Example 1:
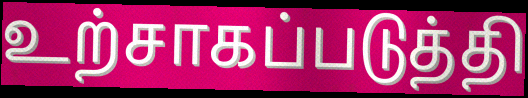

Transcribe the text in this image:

உற்சாகப்படுத்தி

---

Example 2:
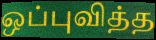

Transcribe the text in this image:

ஒப்புவித்த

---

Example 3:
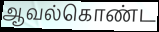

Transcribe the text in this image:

ஆவல்கொண்ட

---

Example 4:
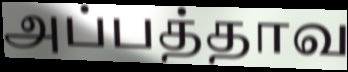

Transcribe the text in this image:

அப்பத்தாவ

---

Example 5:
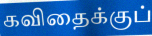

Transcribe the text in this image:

கவிதைக்குப்